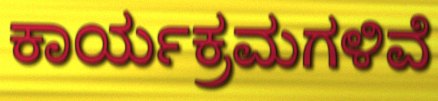
ಕಾರ್ಯಕ್ರಮಗಳಿವೆ